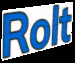
Rolt